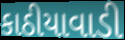
કાઠીયાવાડી